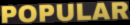
POPULAR